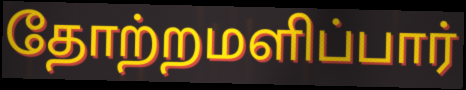
தோற்றமளிப்பார்